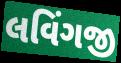
લવિંગજી